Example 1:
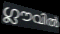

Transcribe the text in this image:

ഗ്ലൗവിൽ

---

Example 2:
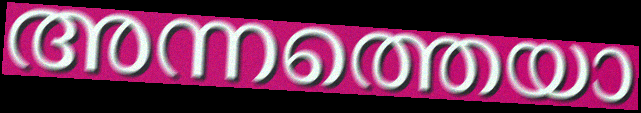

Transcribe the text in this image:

അന്നത്തെയാ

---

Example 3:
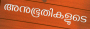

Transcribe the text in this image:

അനുഭൂതികളുടെ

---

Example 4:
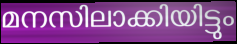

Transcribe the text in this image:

മനസിലാക്കിയിട്ടും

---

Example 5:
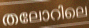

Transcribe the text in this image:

തലോറിലെ